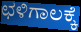
ಛಳಿಗಾಲಕ್ಕೆ